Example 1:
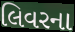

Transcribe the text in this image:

લિવરના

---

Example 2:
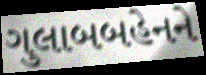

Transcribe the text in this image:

ગુલાબબહેનને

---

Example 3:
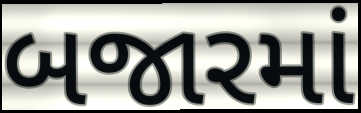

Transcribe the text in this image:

બજારમાં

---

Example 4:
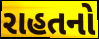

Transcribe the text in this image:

રાહતનો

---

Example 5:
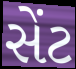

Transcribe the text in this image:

સેંટ